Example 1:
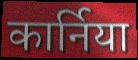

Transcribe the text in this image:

कार्निया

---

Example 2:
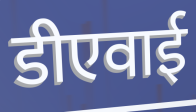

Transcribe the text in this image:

डीएवाई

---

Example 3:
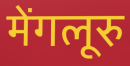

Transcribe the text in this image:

मेंगलूरु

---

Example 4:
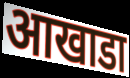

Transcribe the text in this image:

आखाडा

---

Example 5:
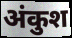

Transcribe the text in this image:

अंकुश